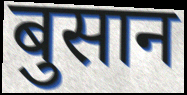
बुसान